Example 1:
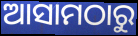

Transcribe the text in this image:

ଆସାମଠାରୁ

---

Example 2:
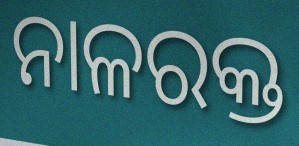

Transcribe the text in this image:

ନାଳରକ୍ତ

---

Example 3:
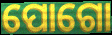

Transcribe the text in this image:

ପୋଗୋ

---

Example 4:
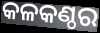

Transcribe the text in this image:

କଳକଣ୍ଠର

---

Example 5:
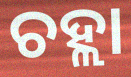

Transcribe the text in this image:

ଚହ୍ଲା